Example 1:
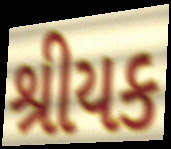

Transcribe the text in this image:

શ્રીયક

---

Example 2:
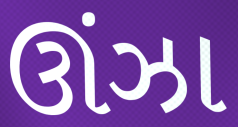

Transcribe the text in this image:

ઊંઝા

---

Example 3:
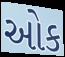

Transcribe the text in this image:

ઓક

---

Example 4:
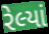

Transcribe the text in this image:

રેલ્યાં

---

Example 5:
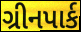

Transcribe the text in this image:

ગ્રીનપાર્ક